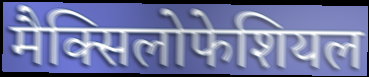
मैक्सिलोफेशियल